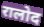
रालोद